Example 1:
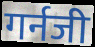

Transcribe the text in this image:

गर्नजी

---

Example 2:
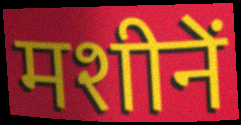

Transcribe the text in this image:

मशीनें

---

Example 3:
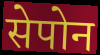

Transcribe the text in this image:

सेपोन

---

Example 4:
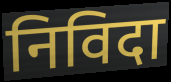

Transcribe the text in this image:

निविदा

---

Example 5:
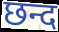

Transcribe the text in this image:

छन्‍द